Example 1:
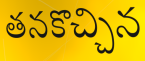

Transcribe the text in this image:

తనకొచ్చిన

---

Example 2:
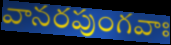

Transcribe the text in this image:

వానరపుంగవాః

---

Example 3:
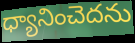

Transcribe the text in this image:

ధ్యానించెదను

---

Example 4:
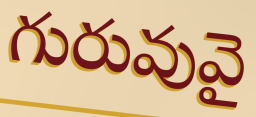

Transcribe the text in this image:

గురువువై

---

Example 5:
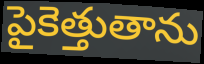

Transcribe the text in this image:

పైకెత్తుతాను